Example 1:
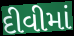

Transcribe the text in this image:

દીવીમાં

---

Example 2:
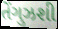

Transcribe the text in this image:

તેંગુઝશી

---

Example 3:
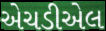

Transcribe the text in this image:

એચડીએલ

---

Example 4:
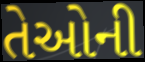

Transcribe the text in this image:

તેઓની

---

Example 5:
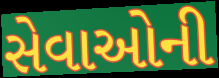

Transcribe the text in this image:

સેવાઓની